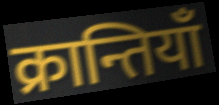
क्रान्तियाँ